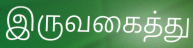
இருவகைத்து